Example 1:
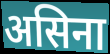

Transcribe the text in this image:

असिना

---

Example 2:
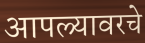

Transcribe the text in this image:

आपल्यावरचे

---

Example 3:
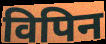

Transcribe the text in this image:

विपिन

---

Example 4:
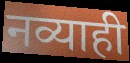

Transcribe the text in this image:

नव्याही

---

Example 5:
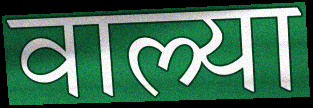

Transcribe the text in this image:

वाल्या